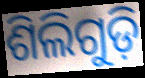
ଶିଲିଗୁଡ଼ି